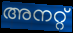
അനറ്റ്